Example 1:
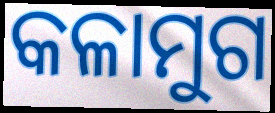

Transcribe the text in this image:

କଳାମୁଗ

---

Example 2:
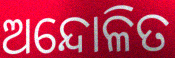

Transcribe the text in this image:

ଅନ୍ଦୋଳିତ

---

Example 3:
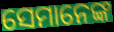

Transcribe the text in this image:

ସେମାନେଙ୍କ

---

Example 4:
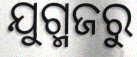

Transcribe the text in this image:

ଯୁଗ୍ମଜରୁ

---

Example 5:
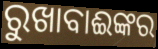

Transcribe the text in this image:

ରୁଖାବାଈଙ୍କର